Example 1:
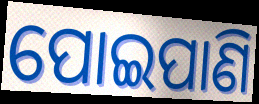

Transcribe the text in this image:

ପୋଇପାଣି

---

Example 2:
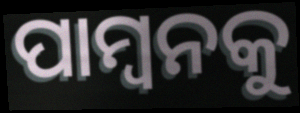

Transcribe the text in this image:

ପାମ୍ବନକୁ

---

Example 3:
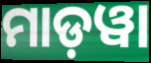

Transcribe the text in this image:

ମାଡ଼ୱା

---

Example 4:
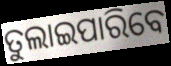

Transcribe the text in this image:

ତୁଲାଇପାରିବେ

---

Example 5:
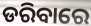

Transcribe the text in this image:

ଡରିବାରେ